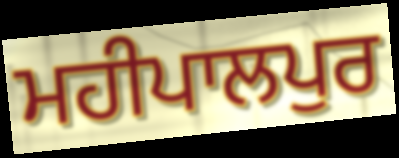
ਮਹੀਪਾਲਪੁਰ